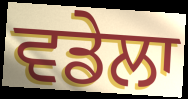
ਵਡੇਲਾ